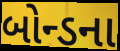
બોન્ડના